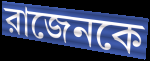
রাজেনকে